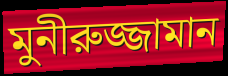
মুনীরুজ্জামান